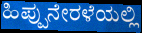
ಹಿಪ್ಪುನೇರಳೆಯಲ್ಲಿ